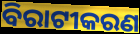
ବିରାଟୀକରଣ